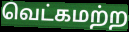
வெட்கமற்ற